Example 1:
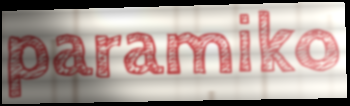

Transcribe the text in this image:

paramiko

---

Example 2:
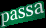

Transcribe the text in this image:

passa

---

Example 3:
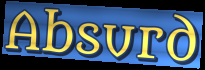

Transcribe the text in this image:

Absurd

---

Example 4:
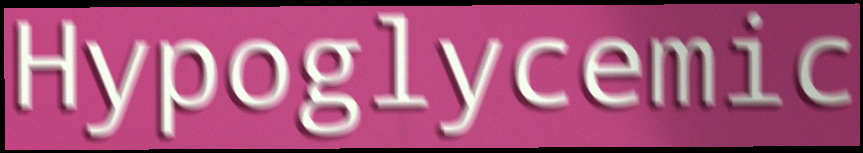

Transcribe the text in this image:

Hypoglycemic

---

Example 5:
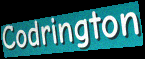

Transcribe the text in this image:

Codrington